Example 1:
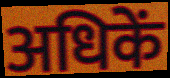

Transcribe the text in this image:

अधिकें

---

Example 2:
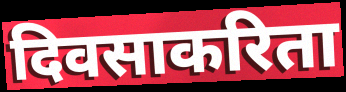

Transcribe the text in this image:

दिवसाकरिता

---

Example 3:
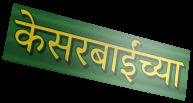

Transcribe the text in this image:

केसरबाईंच्या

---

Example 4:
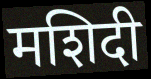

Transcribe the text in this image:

मशिदी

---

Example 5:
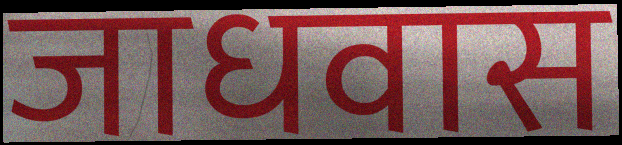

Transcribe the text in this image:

जाधवास